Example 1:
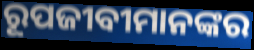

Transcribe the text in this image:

ରୂପଜୀବୀମାନଙ୍କର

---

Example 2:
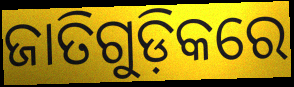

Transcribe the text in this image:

ଜାତିଗୁଡ଼ିକରେ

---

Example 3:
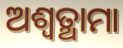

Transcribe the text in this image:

ଅଶ୍ଵତ୍ଥାମା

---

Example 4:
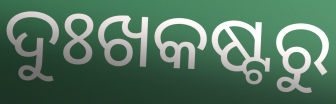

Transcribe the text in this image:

ଦୁଃଖକଷ୍ଟରୁ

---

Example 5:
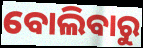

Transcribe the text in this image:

ବୋଲିବାରୁ